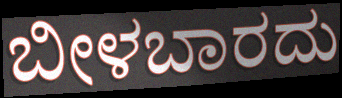
ಬೀಳಬಾರದು